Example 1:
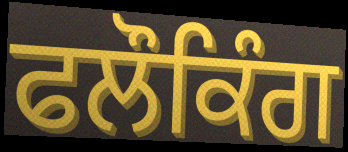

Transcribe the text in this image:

ਫਲੌਕਿੰਗ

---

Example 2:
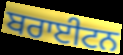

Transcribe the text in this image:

ਬਰਾਈਟਨ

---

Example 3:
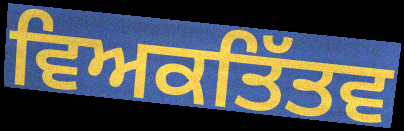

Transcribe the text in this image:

ਵਿਅਕਤਿੱਤਵ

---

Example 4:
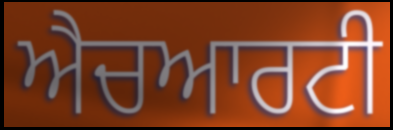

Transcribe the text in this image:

ਐਚਆਰਟੀ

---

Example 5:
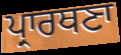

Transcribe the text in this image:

ਪ੍ਰਾਰਥਣਾ